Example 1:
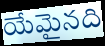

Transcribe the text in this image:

యేమైనది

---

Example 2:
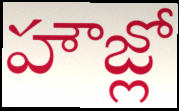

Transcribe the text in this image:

హౌజ్లో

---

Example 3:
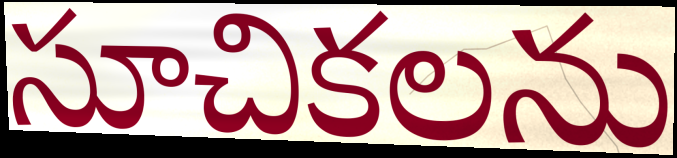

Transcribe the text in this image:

సూచికలను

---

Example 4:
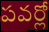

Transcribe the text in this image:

పవర్లో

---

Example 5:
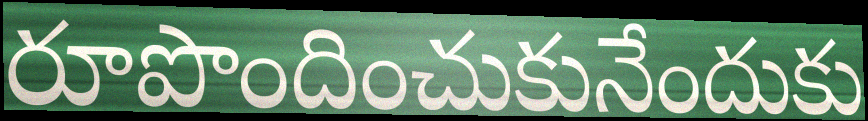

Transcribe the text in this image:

రూపొందించుకునేందుకు